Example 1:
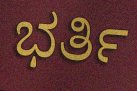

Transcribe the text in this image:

ಭರ್ತಿ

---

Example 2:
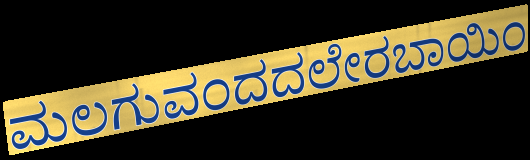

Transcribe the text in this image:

ಮಲಗುವಂದದಲೇರಬಾಯಿಂ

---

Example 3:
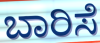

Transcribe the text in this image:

ಬಾರಿಸೆ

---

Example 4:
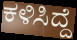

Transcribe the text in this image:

ಕಳಿಸಿದ್ದೆ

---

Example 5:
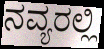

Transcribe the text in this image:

ನವ್ಯರಲ್ಲಿ